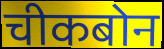
चीकबोन